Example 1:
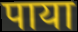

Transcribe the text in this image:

पाया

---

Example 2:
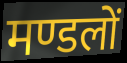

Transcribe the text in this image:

मण्‍डलों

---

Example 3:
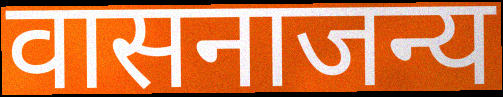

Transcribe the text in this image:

वासनाजन्य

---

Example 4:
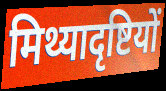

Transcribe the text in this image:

मिथ्यादृष्टियों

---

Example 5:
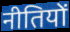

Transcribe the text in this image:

नीतियों